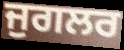
ਜੁਗਲਰ